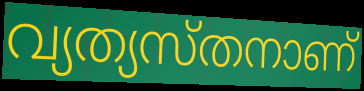
വ്യത്യസ്തനാണ്